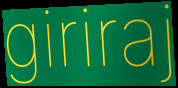
giriraj